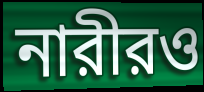
নারীরও